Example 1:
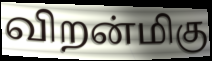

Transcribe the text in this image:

விறன்மிகு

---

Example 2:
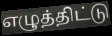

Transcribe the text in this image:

எழுத்திட்டு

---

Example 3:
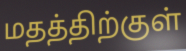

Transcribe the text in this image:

மதத்திற்குள்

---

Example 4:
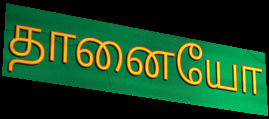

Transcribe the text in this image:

தானையோ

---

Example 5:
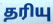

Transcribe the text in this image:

தரியு